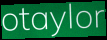
otaylor